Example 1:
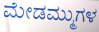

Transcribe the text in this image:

ಮೇಡಮ್ಮುಗಳ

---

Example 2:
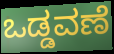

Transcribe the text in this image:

ಒಡ್ಡವಣೆ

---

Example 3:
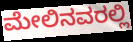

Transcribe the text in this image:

ಮೇಲಿನವರಲ್ಲಿ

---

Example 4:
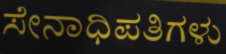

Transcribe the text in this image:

ಸೇನಾಧಿಪತಿಗಳು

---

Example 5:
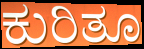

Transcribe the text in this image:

ಕುರಿತೂ